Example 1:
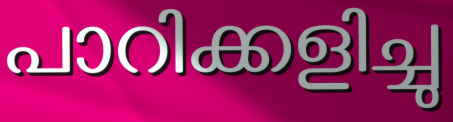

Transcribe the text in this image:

പാറിക്കളിച്ചു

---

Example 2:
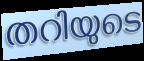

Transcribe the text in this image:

തറിയുടെ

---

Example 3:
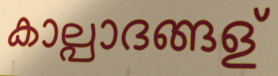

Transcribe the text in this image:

കാല്പാദങ്ങള്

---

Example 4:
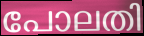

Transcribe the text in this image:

പോലതി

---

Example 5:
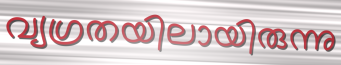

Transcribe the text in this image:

വ്യഗ്രതയിലായിരുന്നു